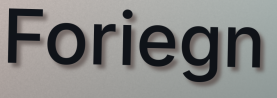
Foriegn